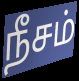
நீசம்